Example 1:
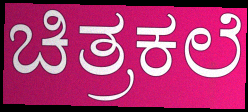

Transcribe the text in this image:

ಚಿತ್ರಕಲೆ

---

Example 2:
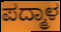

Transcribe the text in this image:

ಪದ್ಮಾಳ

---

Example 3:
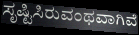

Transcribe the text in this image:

ಸೃಷ್ಟಿಸಿರುವಂಥವಾಗಿವೆ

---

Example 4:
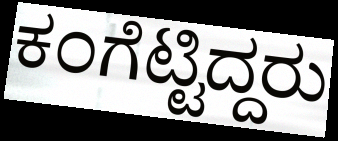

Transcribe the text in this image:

ಕಂಗೆಟ್ಟಿದ್ದರು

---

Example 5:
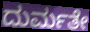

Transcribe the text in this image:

ದುರ್ಮತೇ